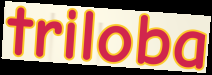
triloba